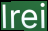
Irei